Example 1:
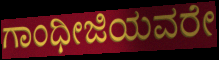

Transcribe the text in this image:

ಗಾಂಧೀಜಿಯವರೇ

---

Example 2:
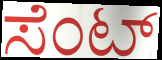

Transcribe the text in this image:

ಸೆಂಟ್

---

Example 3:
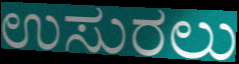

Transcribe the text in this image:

ಉಸುರಲು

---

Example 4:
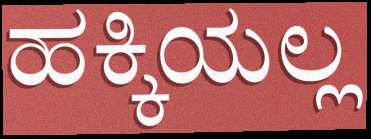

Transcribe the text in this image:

ಹಕ್ಕಿಯಲ್ಲ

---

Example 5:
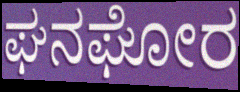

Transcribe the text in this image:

ಘನಘೋರ